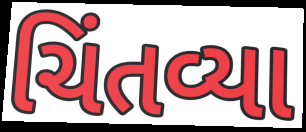
ચિંતવ્યા